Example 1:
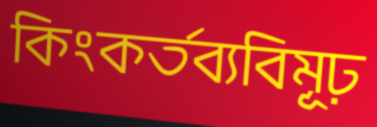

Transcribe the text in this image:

কিংকর্তব্যবিমূঢ়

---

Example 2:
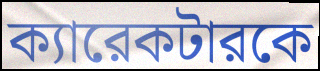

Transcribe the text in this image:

ক্যারেকটারকে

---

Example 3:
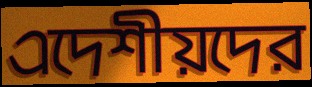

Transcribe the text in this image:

এদেশীয়দের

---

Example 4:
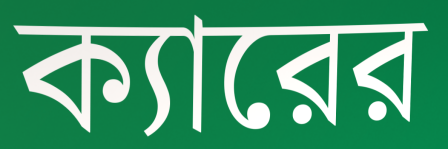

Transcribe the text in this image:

ক্যারের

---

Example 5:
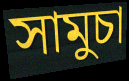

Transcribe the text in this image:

সামুচা